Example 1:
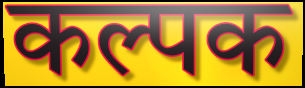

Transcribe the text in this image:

कल्पक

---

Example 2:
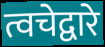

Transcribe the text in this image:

त्वचेद्वारे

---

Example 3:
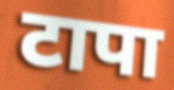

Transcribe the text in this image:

टापा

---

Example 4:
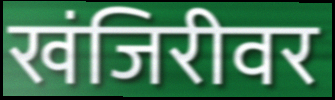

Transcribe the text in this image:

खंजिरीवर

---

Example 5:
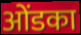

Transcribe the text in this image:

ओंडका